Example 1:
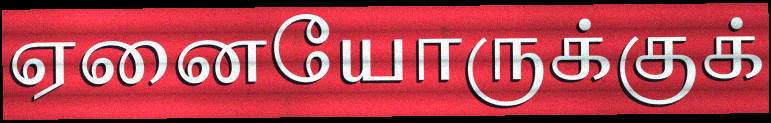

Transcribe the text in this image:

ஏனையோருக்குக்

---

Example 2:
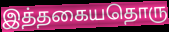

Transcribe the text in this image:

இத்தகையதொரு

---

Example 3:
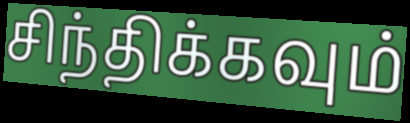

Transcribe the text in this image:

சிந்திக்கவும்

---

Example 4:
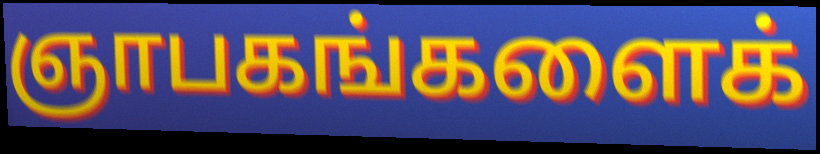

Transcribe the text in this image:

ஞாபகங்களைக்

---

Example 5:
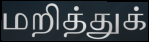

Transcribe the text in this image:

மறித்துக்